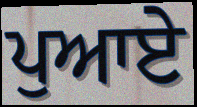
ਪੁਆਏ